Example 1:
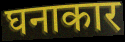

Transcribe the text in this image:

घनाकार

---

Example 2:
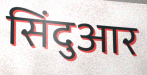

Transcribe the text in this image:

सिंदुआर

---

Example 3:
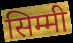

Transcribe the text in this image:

सिम्मी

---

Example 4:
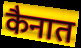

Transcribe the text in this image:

कैनात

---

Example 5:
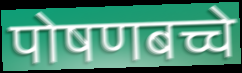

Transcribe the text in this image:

पोषणबच्चे